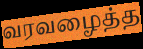
வரவழைத்த